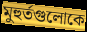
মুহুর্তগুলোকে